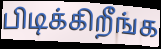
பிடிக்கிறீங்க